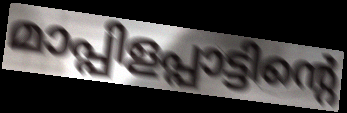
മാപ്പിളപ്പാട്ടിന്റെ